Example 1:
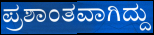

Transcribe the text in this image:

ಪ್ರಶಾಂತವಾಗಿದ್ದು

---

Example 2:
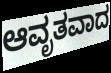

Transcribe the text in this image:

ಆವೃತವಾದ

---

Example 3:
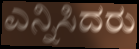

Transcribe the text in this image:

ಎನ್ನಿಸಿದರು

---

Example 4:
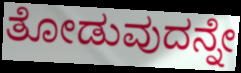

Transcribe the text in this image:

ತೋಡುವುದನ್ನೇ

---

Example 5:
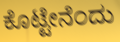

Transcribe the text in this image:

ಕೊಟ್ಟೇನೆಂದು